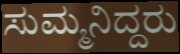
ಸುಮ್ಮನಿದ್ದರು